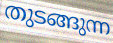
തുടങ്ങുന്ന